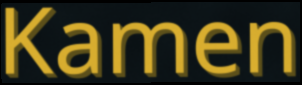
Kamen